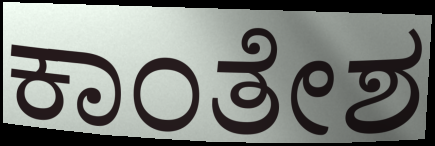
ಕಾಂತೇಶ